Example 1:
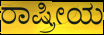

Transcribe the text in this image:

ರಾಷ್ರೀಯ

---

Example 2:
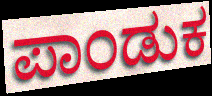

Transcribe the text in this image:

ಪಾಂಡುಕ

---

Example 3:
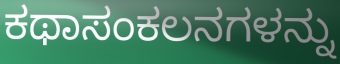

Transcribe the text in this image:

ಕಥಾಸಂಕಲನಗಳನ್ನು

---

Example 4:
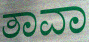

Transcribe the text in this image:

ತಾವಾ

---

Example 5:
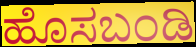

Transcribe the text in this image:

ಹೊಸಬಂಡಿ